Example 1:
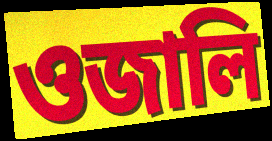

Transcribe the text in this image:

ওজালি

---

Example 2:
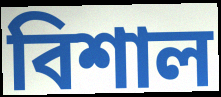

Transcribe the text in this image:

বিশাল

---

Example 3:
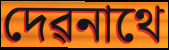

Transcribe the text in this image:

দেৱনাথে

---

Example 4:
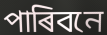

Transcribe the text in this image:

পাৰিবনে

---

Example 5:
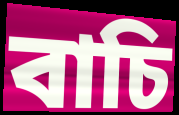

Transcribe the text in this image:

বাচি